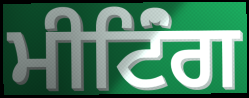
ਮੀਟਿਂੰਗ